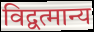
विद्वत्मान्य